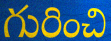
గురించి